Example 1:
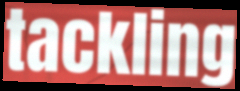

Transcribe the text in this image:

tackling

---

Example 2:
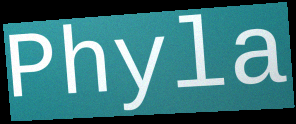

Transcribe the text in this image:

Phyla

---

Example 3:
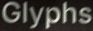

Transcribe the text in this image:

Glyphs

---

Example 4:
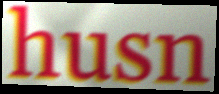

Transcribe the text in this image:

husn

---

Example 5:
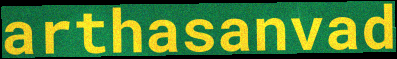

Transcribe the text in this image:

arthasanvad